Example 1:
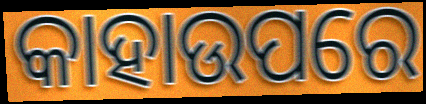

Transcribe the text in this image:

କାହାଉପରେ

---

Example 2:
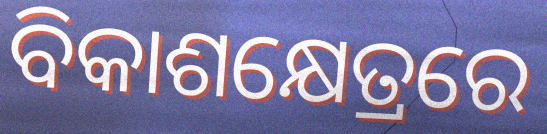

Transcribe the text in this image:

ବିକାଶକ୍ଷେତ୍ରରେ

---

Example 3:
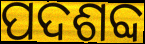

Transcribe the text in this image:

ପଦଶବ୍ଦ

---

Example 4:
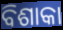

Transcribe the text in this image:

ବିଶାକା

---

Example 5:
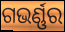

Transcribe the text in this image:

ଗଭର୍ଣ୍ଣର